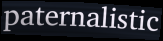
paternalistic